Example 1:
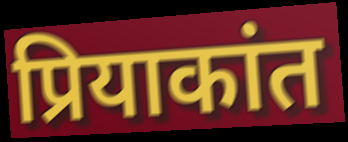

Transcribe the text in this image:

प्रियाकांत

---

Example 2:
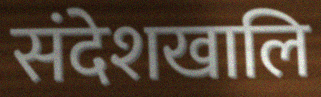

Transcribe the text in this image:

संदेशखालि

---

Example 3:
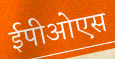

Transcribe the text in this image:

ईपीओएस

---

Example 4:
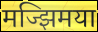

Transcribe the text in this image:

मज्झिमया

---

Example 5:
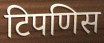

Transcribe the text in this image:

टिपणिस